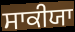
ਸਾਕੀਯਾ